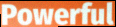
Powerful